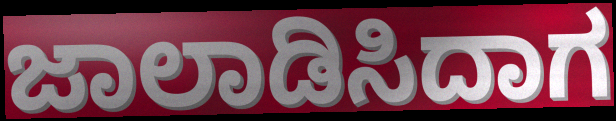
ಜಾಲಾಡಿಸಿದಾಗ